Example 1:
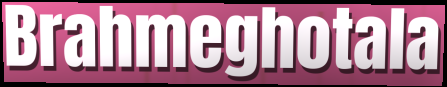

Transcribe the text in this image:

Brahmeghotala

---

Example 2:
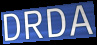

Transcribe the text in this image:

DRDA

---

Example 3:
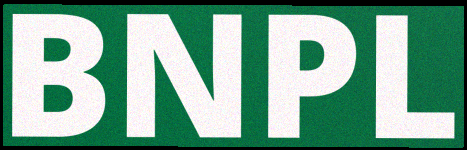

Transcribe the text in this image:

BNPL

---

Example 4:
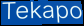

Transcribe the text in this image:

Tekapo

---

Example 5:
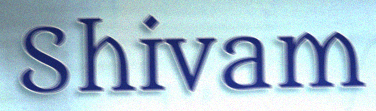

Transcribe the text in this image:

Shivam